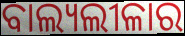
ବାଲ୍ୟଲୀଳାର